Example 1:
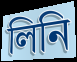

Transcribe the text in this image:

লিনি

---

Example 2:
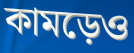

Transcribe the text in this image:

কামড়েও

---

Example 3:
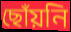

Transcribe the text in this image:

ছোঁয়নি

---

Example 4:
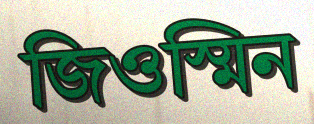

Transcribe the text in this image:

জিওস্মিন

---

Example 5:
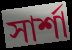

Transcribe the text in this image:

সার্শা